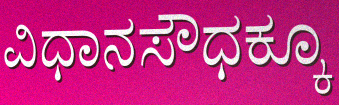
ವಿಧಾನಸೌಧಕ್ಕೂ